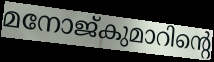
മനോജ്കുമാറിന്റെ